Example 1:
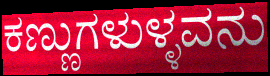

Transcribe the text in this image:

ಕಣ್ಣುಗಳುಳ್ಳವನು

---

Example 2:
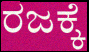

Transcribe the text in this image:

ರಜಕ್ಕೆ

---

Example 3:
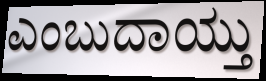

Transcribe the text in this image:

ಎಂಬುದಾಯ್ತು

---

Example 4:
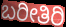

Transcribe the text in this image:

ಬರೀತಿರಿ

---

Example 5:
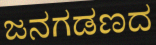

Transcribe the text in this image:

ಜನಗಡಣದ